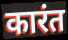
कारंत